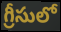
గ్రీసులో